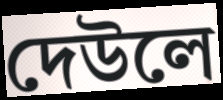
দেউলে